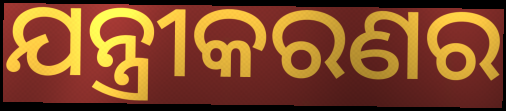
ଯନ୍ତ୍ରୀକରଣର